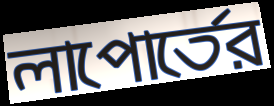
লাপোর্তের